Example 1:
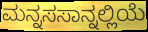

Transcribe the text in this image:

ಮನ್ನಸಸಾನ್ನಲ್ಲಿಯೆ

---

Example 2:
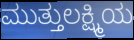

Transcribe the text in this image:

ಮುತ್ತುಲಕ್ಷ್ಮಿಯ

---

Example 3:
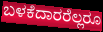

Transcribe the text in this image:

ಬಳಕೆದಾರರೆಲ್ಲರೂ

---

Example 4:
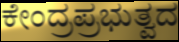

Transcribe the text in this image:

ಕೇಂದ್ರಪ್ರಭುತ್ವದ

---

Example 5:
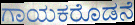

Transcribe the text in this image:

ಗಾಯಕರೊಡನೆ